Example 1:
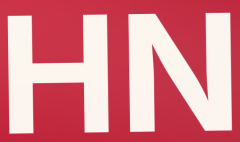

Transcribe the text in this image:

HN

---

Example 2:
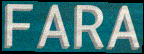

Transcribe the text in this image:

FARA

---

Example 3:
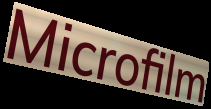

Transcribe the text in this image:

Microfilm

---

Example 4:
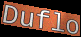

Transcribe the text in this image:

Duflo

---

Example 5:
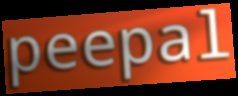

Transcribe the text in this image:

peepal